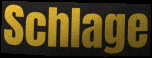
Schlage